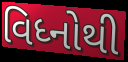
વિધ્નોથી